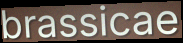
brassicae